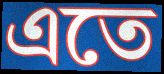
এতে